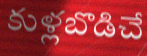
కుళ్లబొడిచే